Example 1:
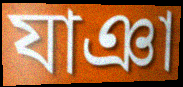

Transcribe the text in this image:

যাঞা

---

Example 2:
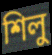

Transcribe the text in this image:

শিলু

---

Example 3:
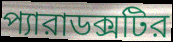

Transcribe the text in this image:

প্যারাডক্সটির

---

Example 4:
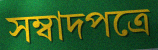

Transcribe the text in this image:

সম্বাদপত্রে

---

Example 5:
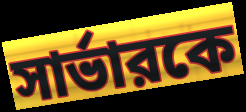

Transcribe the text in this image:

সার্ভারকে